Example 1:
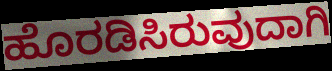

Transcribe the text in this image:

ಹೊರಡಿಸಿರುವುದಾಗಿ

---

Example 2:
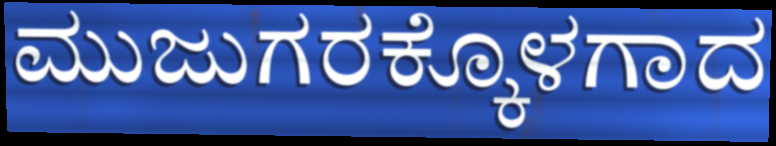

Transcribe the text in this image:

ಮುಜುಗರಕ್ಕೊಳಗಾದ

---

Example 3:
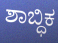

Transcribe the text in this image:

ಶಾಬ್ಧಿಕ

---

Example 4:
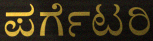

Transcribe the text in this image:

ಪರ್ಗೆಟರಿ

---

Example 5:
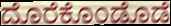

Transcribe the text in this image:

ದೊರೆಕೊಂಡೊಡೆ